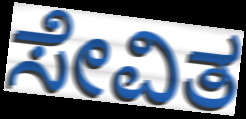
ಸೇವಿತ